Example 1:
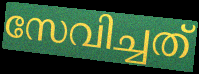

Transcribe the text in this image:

സേവിച്ചത്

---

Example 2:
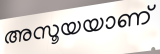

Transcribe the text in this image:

അസൂയയാണ്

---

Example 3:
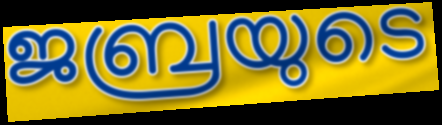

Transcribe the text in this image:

ജബ്രയുടെ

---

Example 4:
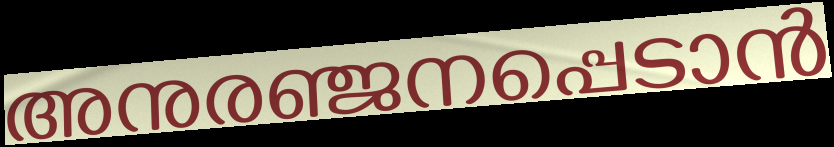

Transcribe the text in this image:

അനുരഞ്ജനപ്പെടാൻ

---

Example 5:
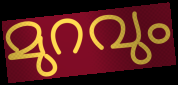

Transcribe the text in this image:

മുറവും